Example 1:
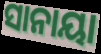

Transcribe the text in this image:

ସାନାୟା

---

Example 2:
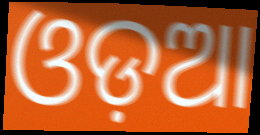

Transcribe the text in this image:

ଓଡ଼ଆ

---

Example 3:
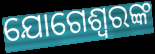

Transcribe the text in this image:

ଯୋଗେଶ୍ୱରଙ୍କ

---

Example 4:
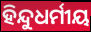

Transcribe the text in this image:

ହିନ୍ଦୁଧର୍ମୀୟ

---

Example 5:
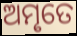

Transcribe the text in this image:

ଅମୃତେ